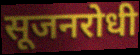
सूजनरोधी